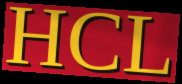
HCL